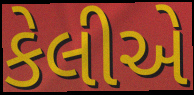
કેલીએ